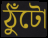
ঠুঁটো